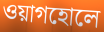
ওয়াগহোলে